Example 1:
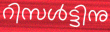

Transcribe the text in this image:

റിസൾട്ടിനു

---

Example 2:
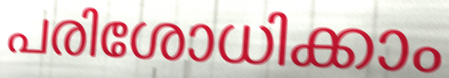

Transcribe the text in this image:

പരിശോധിക്കാം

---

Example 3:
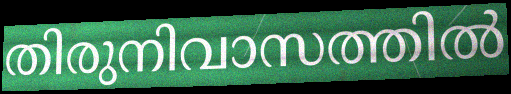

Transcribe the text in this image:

തിരുനിവാസത്തിൽ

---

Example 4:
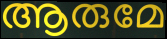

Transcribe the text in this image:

ആരുമേ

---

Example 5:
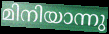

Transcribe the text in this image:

മിനിയാന്നു